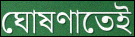
ঘোষণাতেই